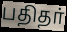
பதிதர்